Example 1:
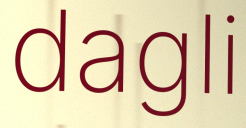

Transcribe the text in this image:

dagli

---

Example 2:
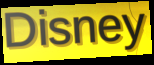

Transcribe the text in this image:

Disney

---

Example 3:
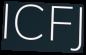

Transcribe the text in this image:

ICFJ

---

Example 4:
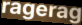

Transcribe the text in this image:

ragerag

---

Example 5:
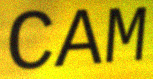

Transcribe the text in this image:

CAM